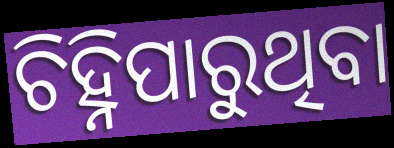
ଚିହ୍ନିପାରୁଥିବା